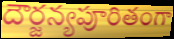
దౌర్జన్యపూరితంగా